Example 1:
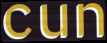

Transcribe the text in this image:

cun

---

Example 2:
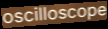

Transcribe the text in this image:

oscilloscope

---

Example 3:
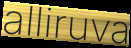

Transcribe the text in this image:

alliruva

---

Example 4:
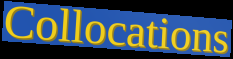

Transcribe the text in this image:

Collocations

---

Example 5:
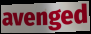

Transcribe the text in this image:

avenged